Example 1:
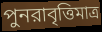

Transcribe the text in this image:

পুনরাবৃত্তিমাত্র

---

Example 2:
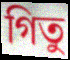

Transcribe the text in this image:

গিতু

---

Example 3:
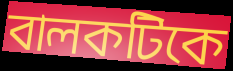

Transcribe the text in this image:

বালকটিকে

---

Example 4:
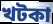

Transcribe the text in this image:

খটকা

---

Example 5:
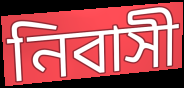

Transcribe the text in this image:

নিবাসী